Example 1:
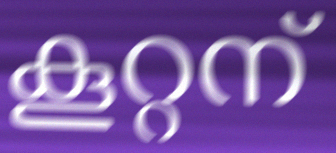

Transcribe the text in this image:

കൂറ്റന്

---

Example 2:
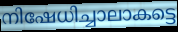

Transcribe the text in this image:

നിഷേധിച്ചാലാകട്ടെ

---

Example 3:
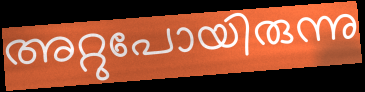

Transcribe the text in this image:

അറ്റുപോയിരുന്നു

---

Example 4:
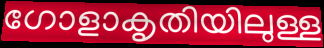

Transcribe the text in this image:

ഗോളാകൃതിയിലുള്ള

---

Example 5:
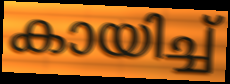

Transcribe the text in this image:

കായിച്ച്